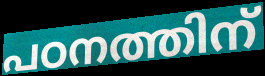
പഠനത്തിന്